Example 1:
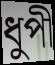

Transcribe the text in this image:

ধুপী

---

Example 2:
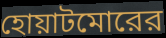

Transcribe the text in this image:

হোয়াটমোরের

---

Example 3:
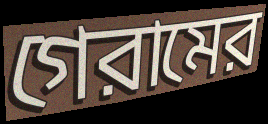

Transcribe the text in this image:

গেরামের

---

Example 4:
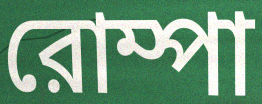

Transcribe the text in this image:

রোম্পা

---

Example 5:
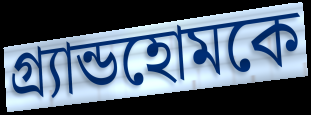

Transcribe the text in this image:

গ্র্যান্ডহোমকে